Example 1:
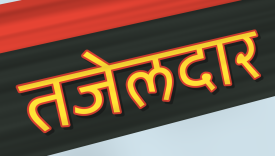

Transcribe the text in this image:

तजेलदार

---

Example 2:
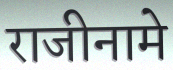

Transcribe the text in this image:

राजीनामे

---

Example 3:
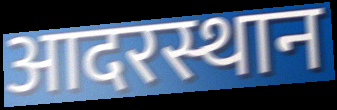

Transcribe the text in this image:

आदरस्थान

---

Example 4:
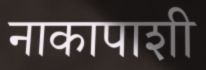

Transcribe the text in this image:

नाकापाशी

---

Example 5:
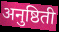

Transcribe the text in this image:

अनुष्ठिती